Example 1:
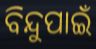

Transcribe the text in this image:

ବିନ୍ଦୁପାଇଁ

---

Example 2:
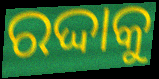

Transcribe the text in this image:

ରଦ୍ଦାକୁ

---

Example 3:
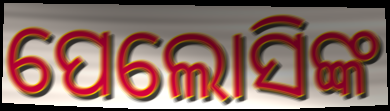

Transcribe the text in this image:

ପେଲୋସିଙ୍କ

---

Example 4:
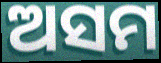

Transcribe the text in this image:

ଅସମ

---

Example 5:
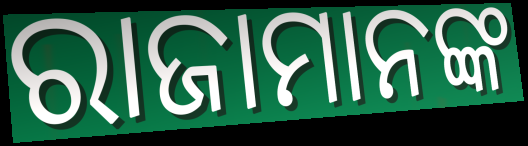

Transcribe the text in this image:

ରାଜାମାନଙ୍କ